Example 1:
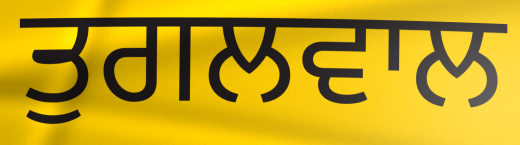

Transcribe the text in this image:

ਤੁਗਲਵਾਲ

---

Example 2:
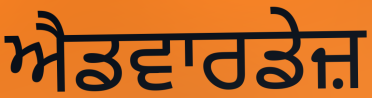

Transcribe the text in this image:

ਐਡਵਾਰਡੇਜ਼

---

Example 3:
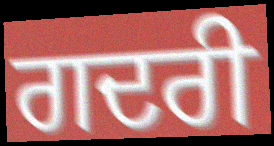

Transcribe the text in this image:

ਗਦਰੀ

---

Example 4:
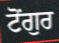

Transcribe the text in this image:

ਟੋਂਗੁਰ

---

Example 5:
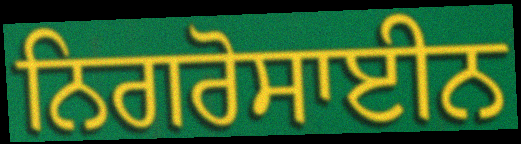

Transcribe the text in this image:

ਨਿਗਰੋਸਾਈਨ